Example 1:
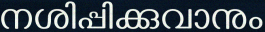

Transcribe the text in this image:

നശിപ്പിക്കുവാനും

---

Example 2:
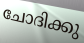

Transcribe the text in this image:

ചോദിക്കു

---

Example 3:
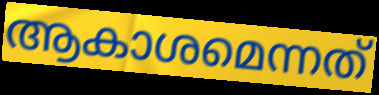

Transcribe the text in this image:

ആകാശമെന്നത്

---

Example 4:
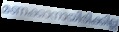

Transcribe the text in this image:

മണക്കാനായിരിക്കില്ല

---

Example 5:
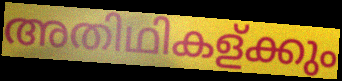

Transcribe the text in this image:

അതിഥികള്ക്കും